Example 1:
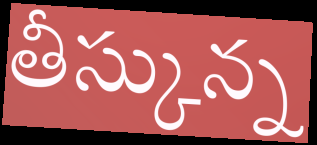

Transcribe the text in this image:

తీస్కున్న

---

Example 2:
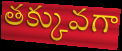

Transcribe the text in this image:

తక్కువగా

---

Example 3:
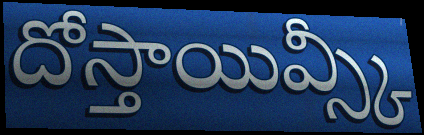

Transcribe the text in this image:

దోస్తాయివ్స్కీ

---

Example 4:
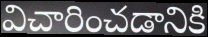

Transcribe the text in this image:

విచారించడానికి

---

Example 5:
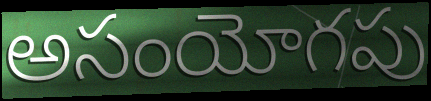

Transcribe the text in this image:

అసంయోగపు